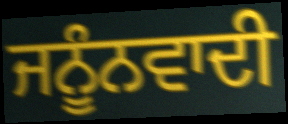
ਜਨੂੰਨਵਾਦੀ